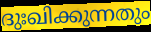
ദുഃഖിക്കുന്നതും